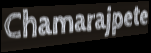
Chamarajpete